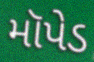
મૉપેડ